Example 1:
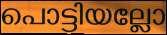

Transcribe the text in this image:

പൊട്ടിയല്ലോ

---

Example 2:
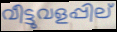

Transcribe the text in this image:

വീട്ടുവളപ്പില്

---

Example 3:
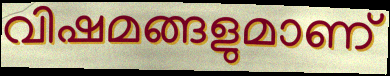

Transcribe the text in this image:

വിഷമങ്ങളുമാണ്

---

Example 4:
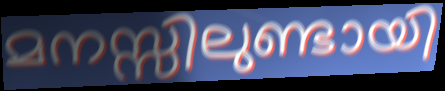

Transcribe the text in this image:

മനസ്സിലുണ്ടായി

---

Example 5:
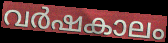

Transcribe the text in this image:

വർഷകാലം